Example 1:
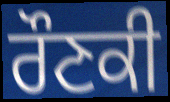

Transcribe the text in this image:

ਰੌਣਕੀ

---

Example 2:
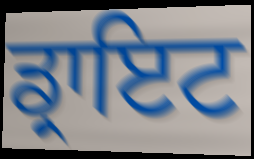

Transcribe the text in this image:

ਡ੍ਰਾਇਟ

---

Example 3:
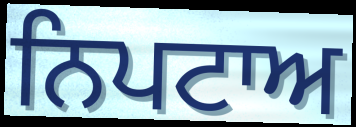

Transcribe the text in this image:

ਨਿਪਟਾਅ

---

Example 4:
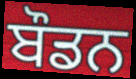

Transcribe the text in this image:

ਬੌਡਨ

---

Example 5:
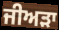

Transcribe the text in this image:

ਜੀਅੜਾ